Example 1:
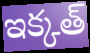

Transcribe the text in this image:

ఇక్కత్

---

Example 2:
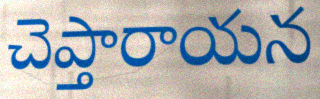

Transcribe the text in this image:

చెప్తారాయన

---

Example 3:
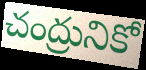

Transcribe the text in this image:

చంద్రునికో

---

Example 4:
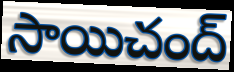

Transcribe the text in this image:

సాయిచంద్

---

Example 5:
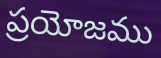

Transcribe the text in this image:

ప్రయోజము